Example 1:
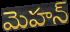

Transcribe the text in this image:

మెహన్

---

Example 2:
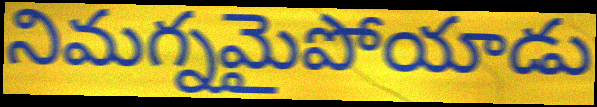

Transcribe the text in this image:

నిమగ్నమైపోయాడు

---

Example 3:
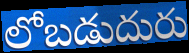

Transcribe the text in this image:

లోబడుదురు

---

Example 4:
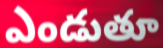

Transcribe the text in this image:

ఎండుతూ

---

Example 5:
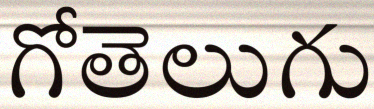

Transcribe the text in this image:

గోతెలుగు